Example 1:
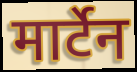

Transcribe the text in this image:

मार्टेन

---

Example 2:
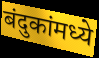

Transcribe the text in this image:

बंदुकांमध्ये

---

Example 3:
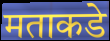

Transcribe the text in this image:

मताकडे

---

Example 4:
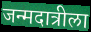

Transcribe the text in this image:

जन्मदात्रीला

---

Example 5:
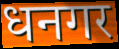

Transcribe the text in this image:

धनगर